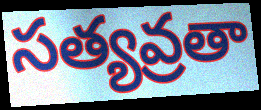
సత్యవ్రతా